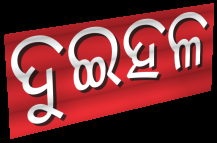
ଦୁଇହଳ